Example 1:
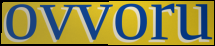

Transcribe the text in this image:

ovvoru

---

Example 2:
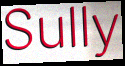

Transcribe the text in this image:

Sully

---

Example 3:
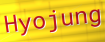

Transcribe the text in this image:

Hyojung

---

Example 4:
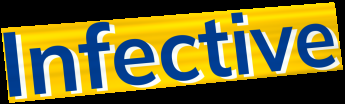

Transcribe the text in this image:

Infective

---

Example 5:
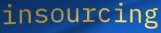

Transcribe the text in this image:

insourcing